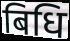
बिधि